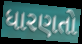
ધારણતો